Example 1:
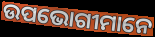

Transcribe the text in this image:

ଉପଭୋଗୀମାନେ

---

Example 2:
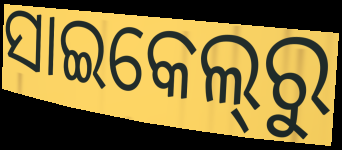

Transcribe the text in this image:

ସାଇକେଲ୍‌ରୁ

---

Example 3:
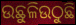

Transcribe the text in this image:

ଉଛୁଳିଉଠୁଛି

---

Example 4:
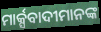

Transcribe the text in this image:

ମାର୍କ୍ସବାଦୀମାନଙ୍କ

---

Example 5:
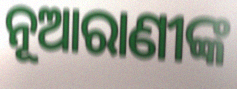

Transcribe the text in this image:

ନୂଆରାଣୀଙ୍କ